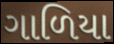
ગાળિયા